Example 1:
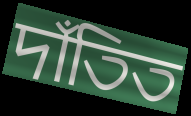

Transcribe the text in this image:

দাঁতিত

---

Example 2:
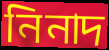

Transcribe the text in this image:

নিনাদ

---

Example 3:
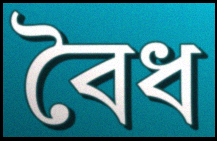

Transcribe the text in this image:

বৈধ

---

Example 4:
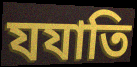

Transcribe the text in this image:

যযাতি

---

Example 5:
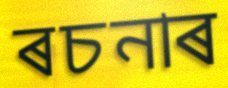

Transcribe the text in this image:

ৰচনাৰ